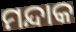
ମନ୍ଦାକ